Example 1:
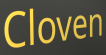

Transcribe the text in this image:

Cloven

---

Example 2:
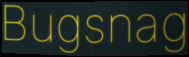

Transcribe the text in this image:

Bugsnag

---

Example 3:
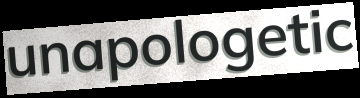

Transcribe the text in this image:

unapologetic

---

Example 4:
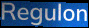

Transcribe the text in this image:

Regulon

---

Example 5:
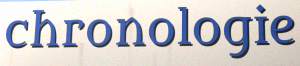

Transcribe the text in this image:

chronologie